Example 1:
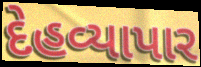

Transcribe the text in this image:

દેહવ્યાપાર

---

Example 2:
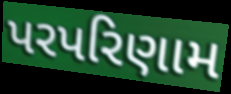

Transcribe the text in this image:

પરપરિણામ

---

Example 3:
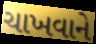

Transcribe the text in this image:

ચાખવાને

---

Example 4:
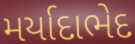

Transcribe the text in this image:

મર્યાદાભેદ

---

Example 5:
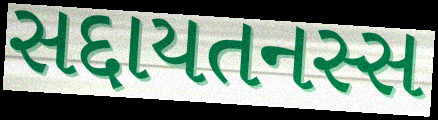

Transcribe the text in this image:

સદ્દાયતનસ્સ